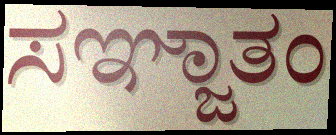
ಸಞ್ಜಾತಂ